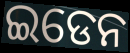
ଇଡେନ